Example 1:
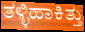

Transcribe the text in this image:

ತಳ್ಳಿಹಾಕಿತ್ತು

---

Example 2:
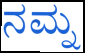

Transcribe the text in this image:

ನಮ್ನ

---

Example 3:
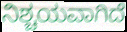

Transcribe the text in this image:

ನಿಶ್ಚಯವಾಗಿದೆ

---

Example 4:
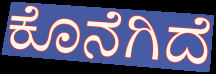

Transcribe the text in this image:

ಕೊನೆಗಿದೆ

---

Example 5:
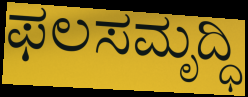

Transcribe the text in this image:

ಫಲಸಮೃದ್ಧಿ